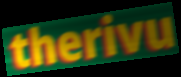
therivu